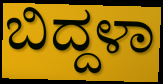
ಬಿದ್ದಳಾ